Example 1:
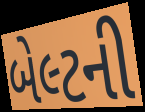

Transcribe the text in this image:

બેલ્ટની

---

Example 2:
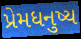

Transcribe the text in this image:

પ્રેમધનુષ્ય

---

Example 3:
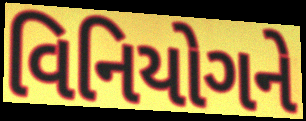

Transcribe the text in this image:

વિનિયોગને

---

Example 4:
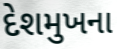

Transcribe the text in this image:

દેશમુખના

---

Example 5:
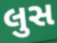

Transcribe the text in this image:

લુસ